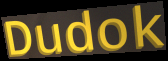
Dudok